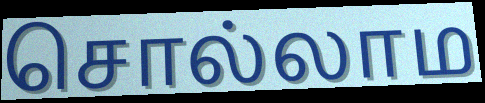
சொல்லாம